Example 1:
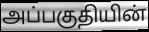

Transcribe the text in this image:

அப்பகுதியின்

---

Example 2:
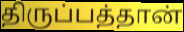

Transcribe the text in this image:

திருப்பத்தான்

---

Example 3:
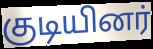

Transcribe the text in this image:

குடியினர்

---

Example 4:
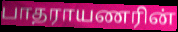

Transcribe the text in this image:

பாதராயணரின்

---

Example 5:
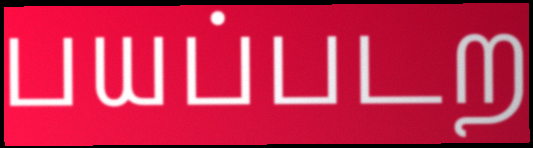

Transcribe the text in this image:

பயப்படற